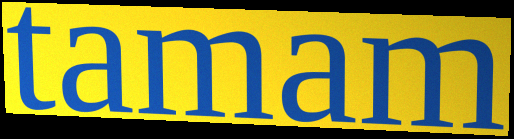
tamam